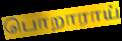
பொறாராய்